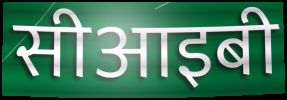
सीआइबी